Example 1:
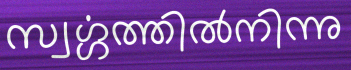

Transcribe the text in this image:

സ്വൎഗ്ഗത്തിൽനിന്നു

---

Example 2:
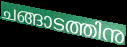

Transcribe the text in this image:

ചങ്ങാടത്തിനു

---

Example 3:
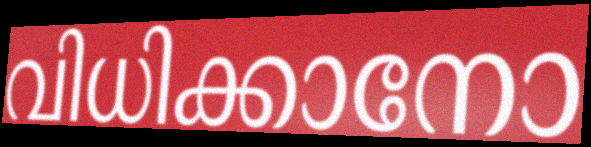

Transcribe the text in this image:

വിധിക്കാനോ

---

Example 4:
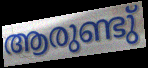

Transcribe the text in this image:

ആരുണ്ടു്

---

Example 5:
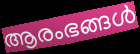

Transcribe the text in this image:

ആരംഭങ്ങൾ